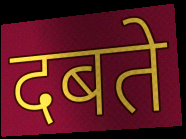
दबते